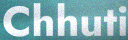
Chhuti